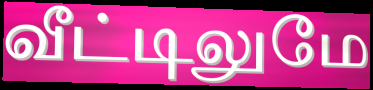
வீட்டிலுமே